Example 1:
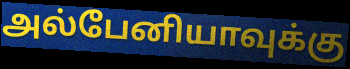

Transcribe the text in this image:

அல்பேனியாவுக்கு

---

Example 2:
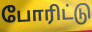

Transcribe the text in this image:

போரிட்டு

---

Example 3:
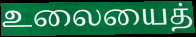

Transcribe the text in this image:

உலையைத்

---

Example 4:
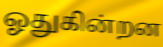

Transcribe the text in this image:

ஓதுகின்றன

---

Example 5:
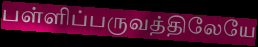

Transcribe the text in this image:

பள்ளிப்பருவத்திலேயே